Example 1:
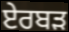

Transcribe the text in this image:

ਏਰਬੜ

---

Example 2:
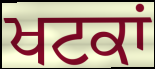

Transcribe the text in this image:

ਖਟਕਾਂ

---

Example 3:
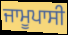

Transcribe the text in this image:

ਜਾਮੂਪਾਸੀ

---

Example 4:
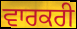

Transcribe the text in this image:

ਵਾਰਕਰੀ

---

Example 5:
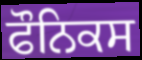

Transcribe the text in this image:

ਫੌਨਿਕਸ